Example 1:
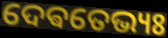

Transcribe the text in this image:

ଦେଵତେଭ୍ୟଃ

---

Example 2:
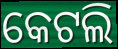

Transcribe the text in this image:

କେଟଲି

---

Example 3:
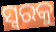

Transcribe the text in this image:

ସ୍ୱରକୁ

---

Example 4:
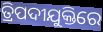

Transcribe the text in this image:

ତ୍ରିପଦୀଯୁକ୍ତିରେ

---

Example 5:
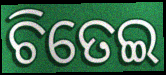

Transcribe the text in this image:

ଚିତେଇ